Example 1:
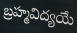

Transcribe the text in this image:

బ్రహ్మవిద్యయే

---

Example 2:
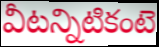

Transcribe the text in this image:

వీటన్నిటికంటె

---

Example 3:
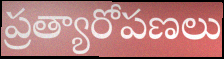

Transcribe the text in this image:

ప్రత్యారోపణలు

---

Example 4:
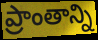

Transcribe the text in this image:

ప్రాంతాన్ని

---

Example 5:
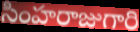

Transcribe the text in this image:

సింహరాజుగారి